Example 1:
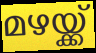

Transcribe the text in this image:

മഴയ്ക്ക്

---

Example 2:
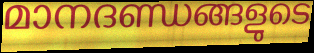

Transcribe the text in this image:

മാനദണ്ഡങ്ങളുടെ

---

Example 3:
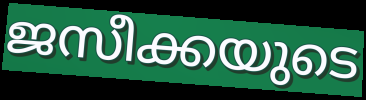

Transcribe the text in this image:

ജസീക്കയുടെ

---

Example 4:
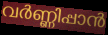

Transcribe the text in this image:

വർണ്ണിപ്പാൻ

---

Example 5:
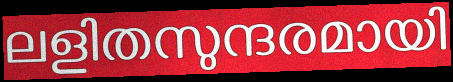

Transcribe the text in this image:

ലളിതസുന്ദരമായി